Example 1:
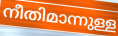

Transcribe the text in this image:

നീതിമാന്നുള്ള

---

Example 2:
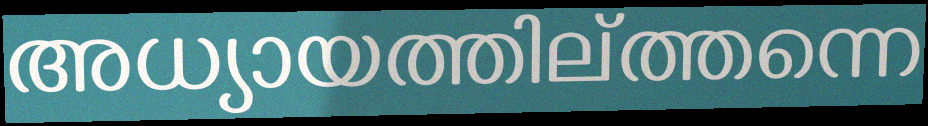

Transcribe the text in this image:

അധ്യായത്തില്ത്തന്നെ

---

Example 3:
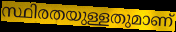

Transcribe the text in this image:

സ്ഥിരതയുള്ളതുമാണ്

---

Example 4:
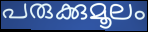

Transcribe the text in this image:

പരുക്കുമൂലം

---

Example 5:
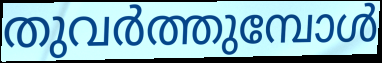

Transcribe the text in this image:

തുവർത്തുമ്പോൾ